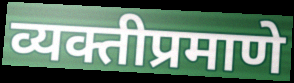
व्यक्तीप्रमाणे